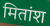
मितांश